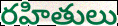
రహితులు